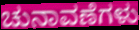
ಚುನಾವಣೆಗಳು